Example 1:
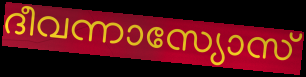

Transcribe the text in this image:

ദീവന്നാസ്യോസ്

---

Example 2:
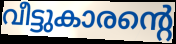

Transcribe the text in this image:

വീട്ടുകാരന്റെ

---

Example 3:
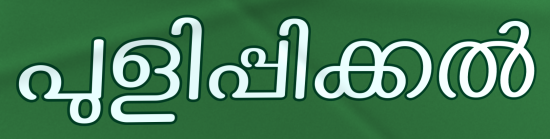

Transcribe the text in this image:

പുളിപ്പിക്കൽ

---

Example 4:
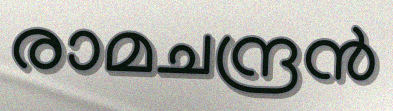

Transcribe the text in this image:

രാമചന്ദ്രൻ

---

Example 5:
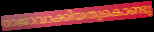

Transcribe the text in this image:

രാജാവാക്കിയതുകൊണ്ടു